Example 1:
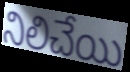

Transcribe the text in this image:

నిలిచేయి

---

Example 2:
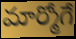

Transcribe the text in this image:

మార్మోగే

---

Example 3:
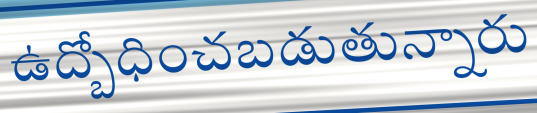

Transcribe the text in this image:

ఉద్బోధించబడుతున్నారు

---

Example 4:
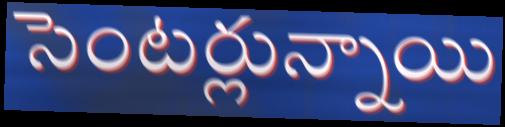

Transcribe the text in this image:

సెంటర్లున్నాయి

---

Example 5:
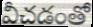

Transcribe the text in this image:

వీచడంతో